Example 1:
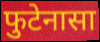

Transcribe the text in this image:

फुटेनासा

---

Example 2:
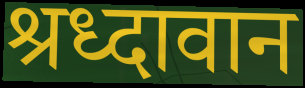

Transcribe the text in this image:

श्रध्दावान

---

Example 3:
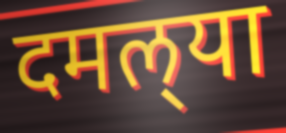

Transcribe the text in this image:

दमल्या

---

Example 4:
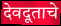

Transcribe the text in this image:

देवदूताचे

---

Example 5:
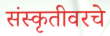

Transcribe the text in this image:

संस्कृतीवरचे